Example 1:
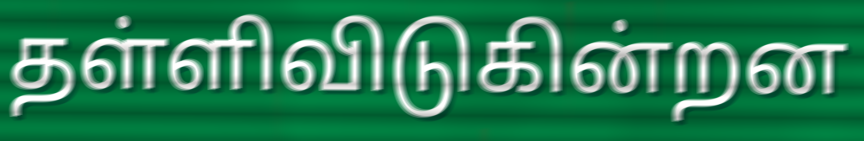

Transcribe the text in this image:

தள்ளிவிடுகின்றன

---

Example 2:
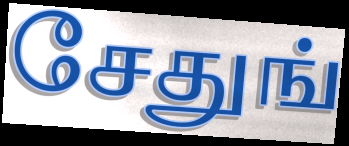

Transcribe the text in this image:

சேதுங்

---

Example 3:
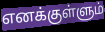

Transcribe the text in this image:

எனக்குள்ளும்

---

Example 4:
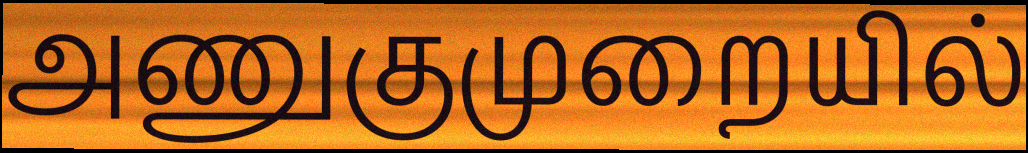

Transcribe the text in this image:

அணுகுமுறையில்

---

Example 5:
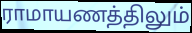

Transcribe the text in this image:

ராமாயணத்திலும்